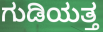
ಗುಡಿಯತ್ತ